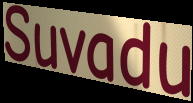
Suvadu